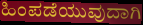
ಹಿಂಪಡೆಯುವುದಾಗಿ